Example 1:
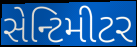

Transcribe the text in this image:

સેન્ટિમીટર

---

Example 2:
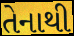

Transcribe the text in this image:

તેનાથી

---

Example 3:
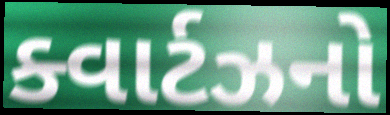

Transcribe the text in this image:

ક્વાર્ટઝનો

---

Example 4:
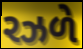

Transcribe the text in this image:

રઝળે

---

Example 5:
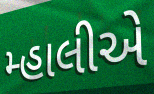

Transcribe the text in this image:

મ્હાલીએ